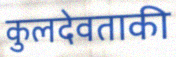
कुलदेवताकी